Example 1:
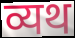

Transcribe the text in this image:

व्यथ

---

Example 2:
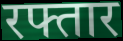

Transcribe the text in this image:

रफ्‍तार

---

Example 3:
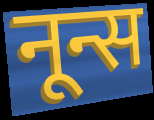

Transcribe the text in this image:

नून्स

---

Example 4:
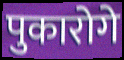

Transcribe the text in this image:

पुकारोगे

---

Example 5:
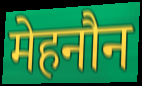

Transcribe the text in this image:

मेहनौन